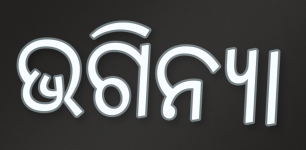
ଭଗିନ୍ୟା